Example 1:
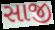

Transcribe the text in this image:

સાજી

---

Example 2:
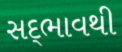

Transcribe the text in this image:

સદ્‍ભાવથી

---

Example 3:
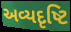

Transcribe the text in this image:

અવ્યદૃષ્ટિ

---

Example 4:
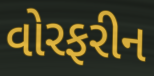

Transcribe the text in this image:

વોરફરીન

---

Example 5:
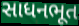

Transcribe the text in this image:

સાધનભૂત